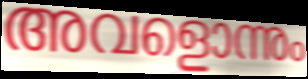
അവളൊന്നും